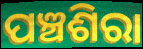
ପଞ୍ଚଶିରା